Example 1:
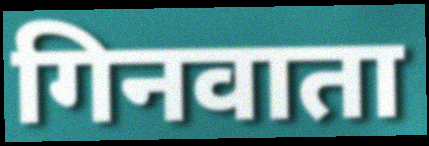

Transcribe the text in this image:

गिनवाता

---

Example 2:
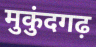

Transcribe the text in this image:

मुकुंदगढ़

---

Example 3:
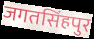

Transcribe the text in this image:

जगतसिंहपुर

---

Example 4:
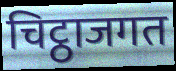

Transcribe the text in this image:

चिट्ठाजगत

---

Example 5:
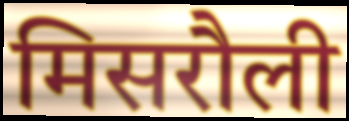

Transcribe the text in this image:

मिसरौली